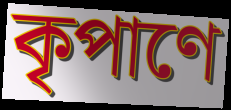
কৃপাণে